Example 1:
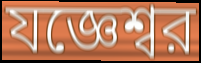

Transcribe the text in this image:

যজ্ঞেশ্বর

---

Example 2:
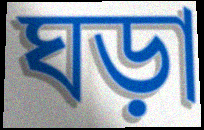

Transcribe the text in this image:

ঘড়া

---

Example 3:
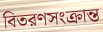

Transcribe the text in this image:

বিতরণসংক্রান্ত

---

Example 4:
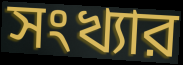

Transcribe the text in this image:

সংখ্যার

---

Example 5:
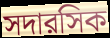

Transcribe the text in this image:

সদারসিক